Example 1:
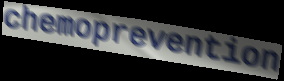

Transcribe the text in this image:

chemoprevention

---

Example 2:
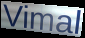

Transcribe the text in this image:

Vimal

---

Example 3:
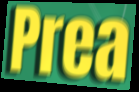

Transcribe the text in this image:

Prea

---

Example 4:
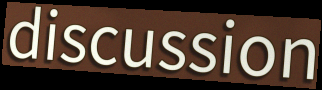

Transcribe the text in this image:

discussion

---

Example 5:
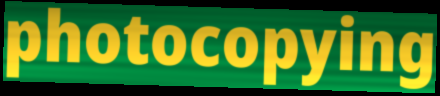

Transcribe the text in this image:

photocopying